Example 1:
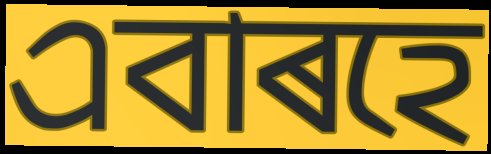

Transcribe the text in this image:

এবাৰহে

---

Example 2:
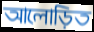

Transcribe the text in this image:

আলোড়িত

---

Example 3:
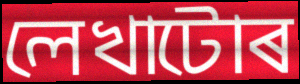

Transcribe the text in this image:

লেখাটোৰ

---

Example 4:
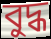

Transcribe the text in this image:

বুদ্ধ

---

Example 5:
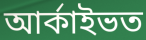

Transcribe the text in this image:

আৰ্কাইভত